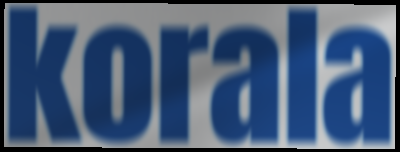
korala